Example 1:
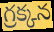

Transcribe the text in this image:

గ్రక్కన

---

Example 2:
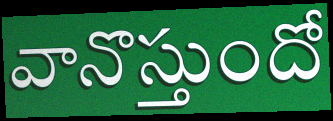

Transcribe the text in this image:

వానొస్తుందో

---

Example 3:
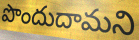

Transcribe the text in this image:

పొందుదామని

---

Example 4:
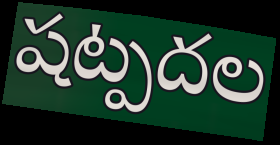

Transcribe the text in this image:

షట్పదల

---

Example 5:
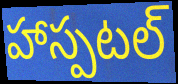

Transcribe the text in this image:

హాస్పటల్